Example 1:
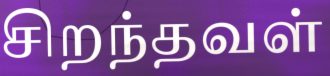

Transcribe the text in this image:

சிறந்தவள்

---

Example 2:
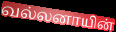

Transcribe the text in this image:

வல்லனாயின்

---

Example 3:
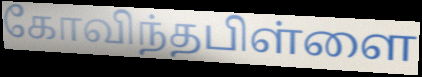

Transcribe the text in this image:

கோவிந்தபிள்ளை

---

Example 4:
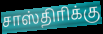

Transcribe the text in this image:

சாஸ்திரிக்கு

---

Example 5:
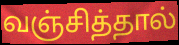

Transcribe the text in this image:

வஞ்சித்தால்